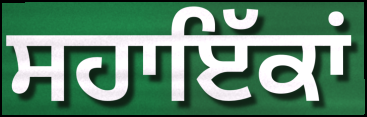
ਸਹਾਇੱਕਾਂ